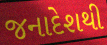
જનાદેશથી